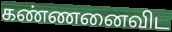
கண்ணனைவிட